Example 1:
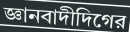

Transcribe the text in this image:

জ্ঞানবাদীদিগের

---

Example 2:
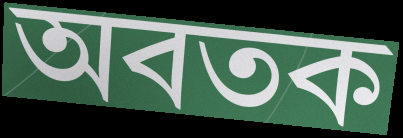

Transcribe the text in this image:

অবতক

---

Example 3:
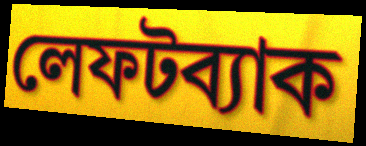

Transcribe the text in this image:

লেফটব্যাক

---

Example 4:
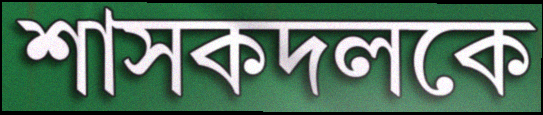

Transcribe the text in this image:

শাসকদলকে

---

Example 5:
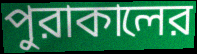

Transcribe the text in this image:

পুরাকালের